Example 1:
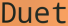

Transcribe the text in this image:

Duet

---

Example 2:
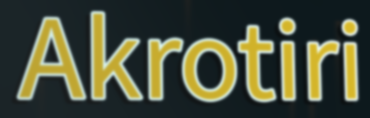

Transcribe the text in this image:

Akrotiri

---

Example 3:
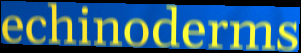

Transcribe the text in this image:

echinoderms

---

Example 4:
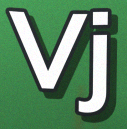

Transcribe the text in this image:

Vj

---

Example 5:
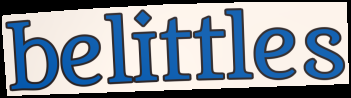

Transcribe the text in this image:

belittles